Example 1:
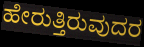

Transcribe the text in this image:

ಹೇರುತ್ತಿರುವುದರ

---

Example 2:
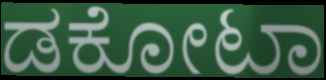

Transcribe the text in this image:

ಡಕೋಟಾ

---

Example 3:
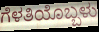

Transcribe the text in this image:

ಗೆಳತಿಯೊಬ್ಬಳು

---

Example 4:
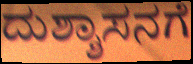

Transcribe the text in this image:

ದುಶ್ಶಾಸನಗೆ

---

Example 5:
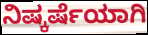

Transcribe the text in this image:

ನಿಷ್ಕರ್ಷೆಯಾಗಿ